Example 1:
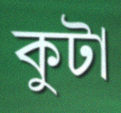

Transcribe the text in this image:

কুটা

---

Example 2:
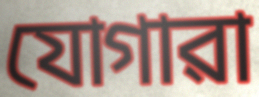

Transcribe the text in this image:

যোগাৱা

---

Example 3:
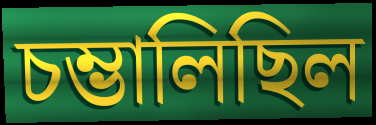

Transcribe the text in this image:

চম্ভালিছিল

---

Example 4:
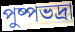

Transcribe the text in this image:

পুষ্পভদ্ৰা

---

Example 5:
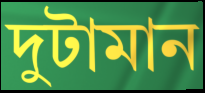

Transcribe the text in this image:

দুটামান